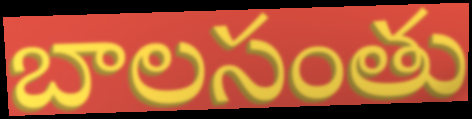
బాలసంతు